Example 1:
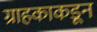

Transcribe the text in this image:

ग्राहकाकडून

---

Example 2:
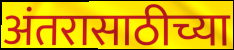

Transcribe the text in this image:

अंतरासाठीच्या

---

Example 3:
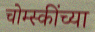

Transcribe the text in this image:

चोम्स्कींच्या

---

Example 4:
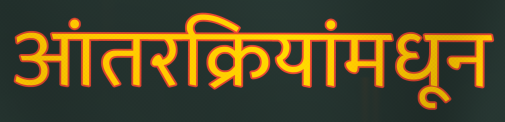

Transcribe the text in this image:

आंतरक्रियांमधून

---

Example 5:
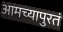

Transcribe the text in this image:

आमच्यापुरतं